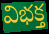
విభక్త